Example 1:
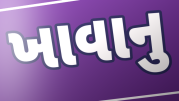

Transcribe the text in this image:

ખાવાનુ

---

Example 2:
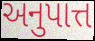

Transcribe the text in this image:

અનુપાત્ત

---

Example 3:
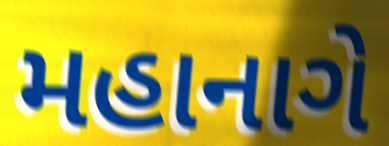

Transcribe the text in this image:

મહાનાગે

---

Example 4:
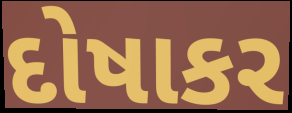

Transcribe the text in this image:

દોષાકર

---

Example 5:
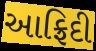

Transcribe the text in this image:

આફ્રિદી